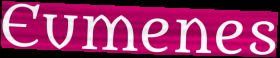
Eumenes